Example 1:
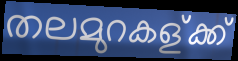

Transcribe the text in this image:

തലമുറകള്ക്ക്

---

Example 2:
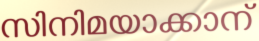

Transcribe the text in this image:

സിനിമയാക്കാന്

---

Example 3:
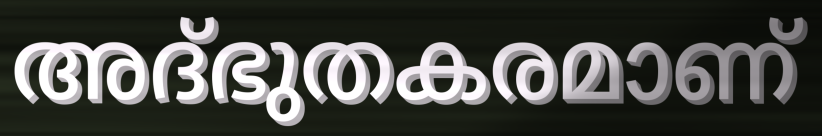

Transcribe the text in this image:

അദ്ഭുതകരമാണ്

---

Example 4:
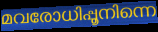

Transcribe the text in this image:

മവരോധിപ്പൂനിന്നെ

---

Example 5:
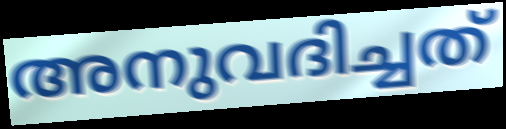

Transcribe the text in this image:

അനുവദിച്ചത്